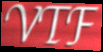
VTF